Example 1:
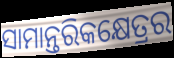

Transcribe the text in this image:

ସାମାନ୍ତରିକକ୍ଷେତ୍ରର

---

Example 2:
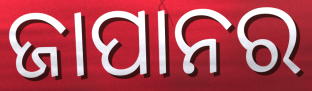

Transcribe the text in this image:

ଜାପାନର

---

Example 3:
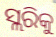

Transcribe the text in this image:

ସ୍ଲରିକୁ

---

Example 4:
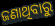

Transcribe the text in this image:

ଜଣାଥିବାରୁ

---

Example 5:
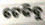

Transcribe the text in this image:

ଟେକିବୁ